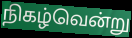
நிகழ்வென்று